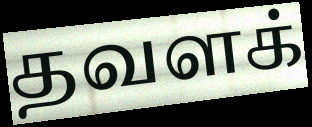
தவளக்